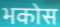
भकोस